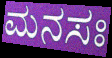
ಮನಸಃ